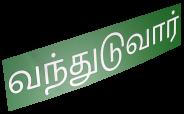
வந்துடுவார்